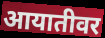
आयातीवर